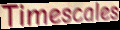
Timescales